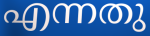
എന്നതു